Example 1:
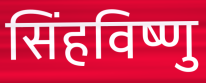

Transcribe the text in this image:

सिंहविष्णु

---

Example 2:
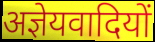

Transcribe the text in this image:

अज्ञेयवादियों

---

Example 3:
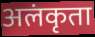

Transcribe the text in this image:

अलंकृता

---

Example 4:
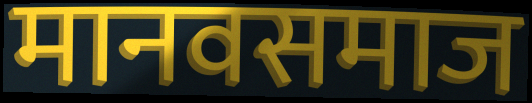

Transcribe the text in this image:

मानवसमाज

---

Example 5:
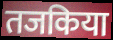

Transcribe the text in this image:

तजकिया